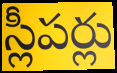
స్లీపర్లు